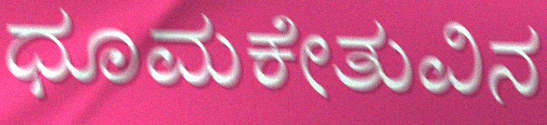
ಧೂಮಕೇತುವಿನ